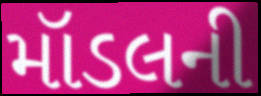
મૉડલની